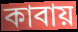
কাবায়